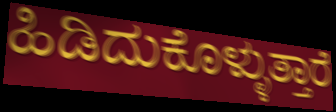
ಹಿಡಿದುಕೊಳ್ಳುತ್ತಾರೆ